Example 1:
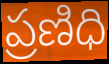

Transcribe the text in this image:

ప్రణిధి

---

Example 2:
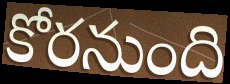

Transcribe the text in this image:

కోరనుంది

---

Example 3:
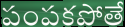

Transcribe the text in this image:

పంపకపోతే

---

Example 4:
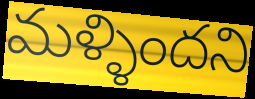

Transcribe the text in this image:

మళ్ళిందని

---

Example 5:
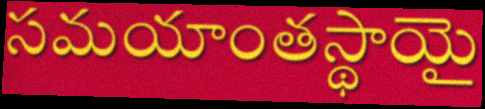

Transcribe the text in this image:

సమయాంతస్థాయై